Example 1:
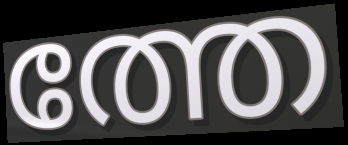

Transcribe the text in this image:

ത്തേ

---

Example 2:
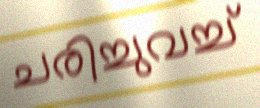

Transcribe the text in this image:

ചരിച്ചുവച്ച്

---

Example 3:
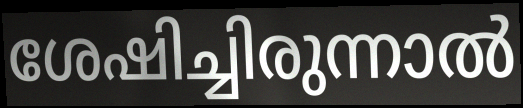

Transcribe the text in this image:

ശേഷിച്ചിരുന്നാൽ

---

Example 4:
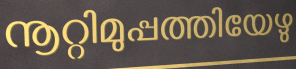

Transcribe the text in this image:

നൂറ്റിമുപ്പത്തിയേഴു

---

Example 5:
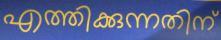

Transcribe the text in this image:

എത്തിക്കുന്നതിന്